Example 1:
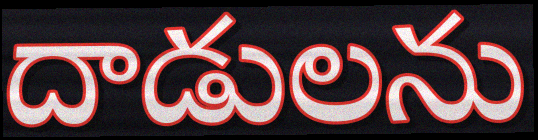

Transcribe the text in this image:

దాడులను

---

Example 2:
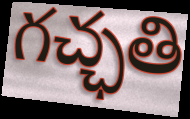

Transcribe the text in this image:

గచ్ఛతి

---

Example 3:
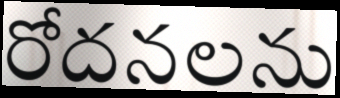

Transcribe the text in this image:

రోదనలను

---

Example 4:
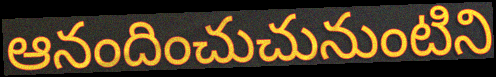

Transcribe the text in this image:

ఆనందించుచునుంటిని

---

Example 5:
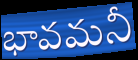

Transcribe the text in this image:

భావమనీ